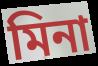
মিনা